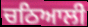
ਚਠਿਆਲੀ